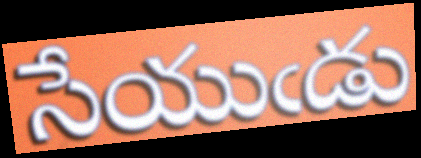
సేయుఁడు